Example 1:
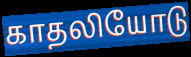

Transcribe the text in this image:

காதலியோடு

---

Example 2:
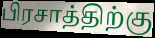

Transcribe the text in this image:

பிரசாத்திற்கு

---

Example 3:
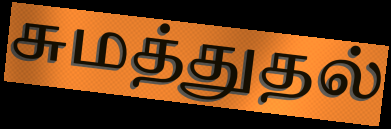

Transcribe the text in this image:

சுமத்துதல்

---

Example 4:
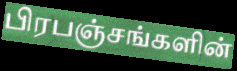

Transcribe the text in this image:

பிரபஞ்சங்களின்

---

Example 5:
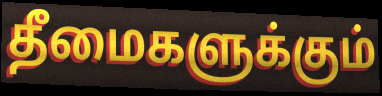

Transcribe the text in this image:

தீமைகளுக்கும்